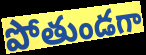
పోతుండగా